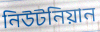
নিউটনিয়ান